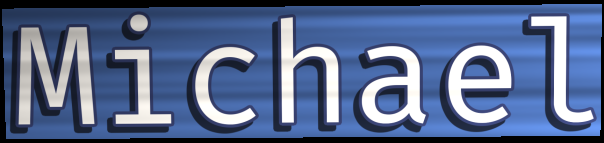
Michael